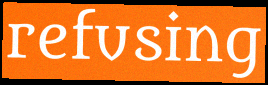
refusing